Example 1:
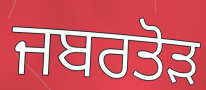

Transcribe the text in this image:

ਜਬਰਤੋੜ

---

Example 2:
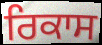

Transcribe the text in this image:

ਰਿਕਾਸ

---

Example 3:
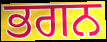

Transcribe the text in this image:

ਭਗਨ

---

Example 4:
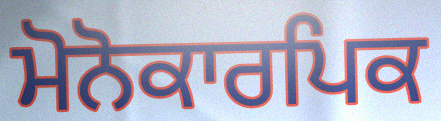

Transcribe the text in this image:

ਮੋਨੋਕਾਰਪਿਕ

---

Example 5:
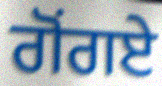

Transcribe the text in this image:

ਗੋਂਗਏ